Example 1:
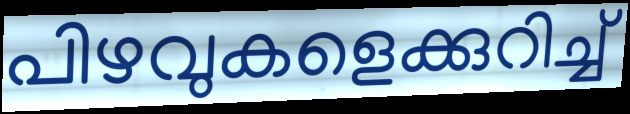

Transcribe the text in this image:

പിഴവുകളെക്കുറിച്ച്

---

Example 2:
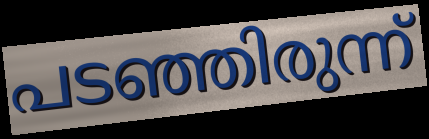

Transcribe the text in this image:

പടഞ്ഞിരുന്ന്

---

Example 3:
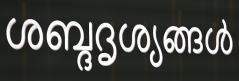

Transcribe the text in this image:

ശബ്ദദൃശ്യങ്ങൾ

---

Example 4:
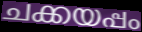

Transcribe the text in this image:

ചക്കയപ്പം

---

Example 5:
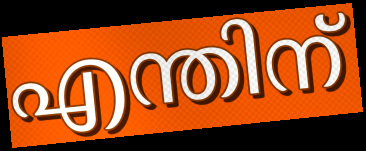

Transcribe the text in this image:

എന്തിന്